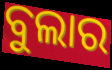
ବୁଲାର